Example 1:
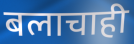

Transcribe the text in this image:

बलाचाही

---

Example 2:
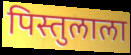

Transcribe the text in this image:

पिस्तुलाला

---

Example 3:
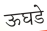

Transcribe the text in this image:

ऊघडे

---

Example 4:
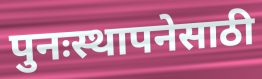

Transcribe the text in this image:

पुनःस्थापनेसाठी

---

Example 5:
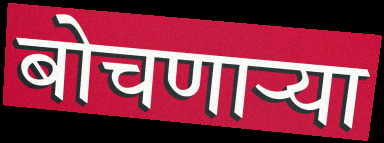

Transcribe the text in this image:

बोचणाऱ्या